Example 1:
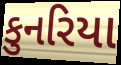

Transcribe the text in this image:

કુનરિયા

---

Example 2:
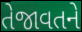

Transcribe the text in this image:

તેજાવતને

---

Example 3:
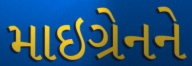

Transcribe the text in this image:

માઇગ્રેનને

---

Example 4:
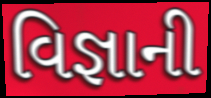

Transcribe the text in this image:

વિજ્ઞાની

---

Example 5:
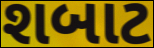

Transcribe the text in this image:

શબાટ